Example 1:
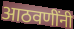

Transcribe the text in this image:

आठवणींनी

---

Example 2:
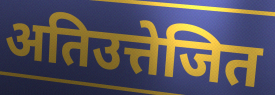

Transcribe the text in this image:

अतिउत्तेजित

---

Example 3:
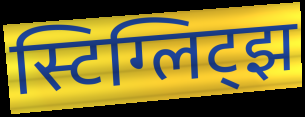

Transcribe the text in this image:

स्टिग्लिट्झ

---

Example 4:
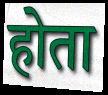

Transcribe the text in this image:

होता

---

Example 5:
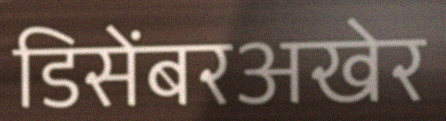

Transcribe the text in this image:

डिसेंबरअखेर